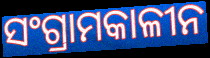
ସଂଗ୍ରାମକାଳୀନ